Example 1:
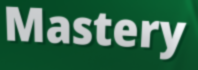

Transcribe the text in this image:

Mastery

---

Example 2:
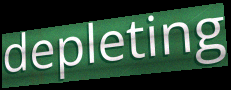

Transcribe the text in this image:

depleting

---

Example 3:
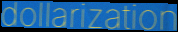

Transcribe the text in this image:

dollarization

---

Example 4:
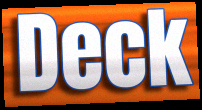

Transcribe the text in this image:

Deck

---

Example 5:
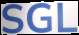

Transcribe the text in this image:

SGL